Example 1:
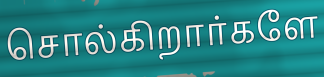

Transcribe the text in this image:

சொல்கிறார்களே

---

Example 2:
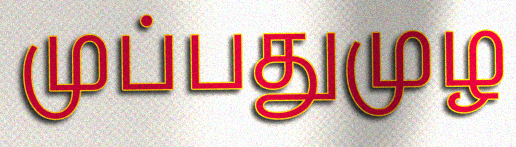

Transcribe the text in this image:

முப்பதுமுழ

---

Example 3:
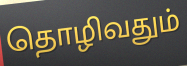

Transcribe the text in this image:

தொழிவதும்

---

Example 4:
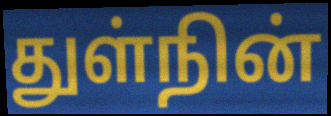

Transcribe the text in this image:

துள்நின்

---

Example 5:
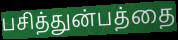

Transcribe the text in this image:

பசித்துன்பத்தை